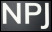
NPJ